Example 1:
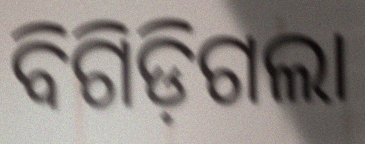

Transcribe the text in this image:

ବିଗିଡ଼ିଗଲା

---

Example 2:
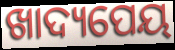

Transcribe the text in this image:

ଖାଦ୍ୟପେୟ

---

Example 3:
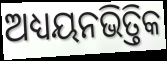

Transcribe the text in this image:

ଅଧ୍ୟୟନଭିତ୍ତିକ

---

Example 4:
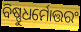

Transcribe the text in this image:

ବିଷ୍ଣୁଧର୍ମୋତ୍ତରଂ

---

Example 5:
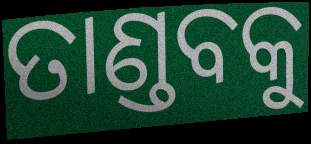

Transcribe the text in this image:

ତାଣ୍ଡବକୁ